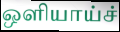
ஒளியாய்ச்